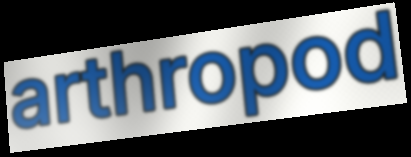
arthropod